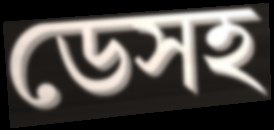
ডেসহ